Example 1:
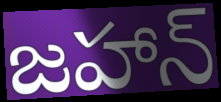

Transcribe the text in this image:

జహాన్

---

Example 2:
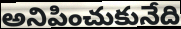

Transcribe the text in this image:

అనిపించుకునేది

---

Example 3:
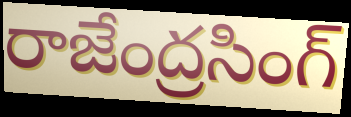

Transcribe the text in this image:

రాజేంద్రసింగ్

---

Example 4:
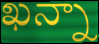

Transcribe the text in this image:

ఖన్నా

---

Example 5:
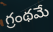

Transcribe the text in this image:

గ్రంథమే